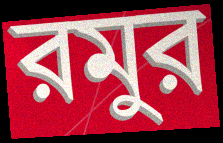
রমুর